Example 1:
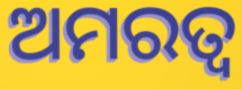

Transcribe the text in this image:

ଅମରତ୍ବ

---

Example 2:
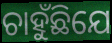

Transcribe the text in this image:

ଚାହୁଁଛିଯେ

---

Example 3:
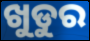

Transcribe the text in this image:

ଖୁଡୁର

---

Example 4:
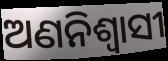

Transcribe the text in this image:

ଅଣନିଶ୍ୱାସୀ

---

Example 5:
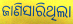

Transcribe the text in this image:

ଜାଣିସାରିଥିଲା